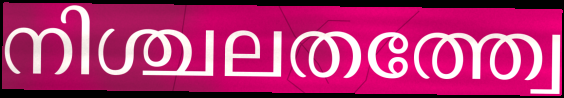
നിശ്ചലതത്ത്വേ